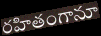
రహితంగానూ